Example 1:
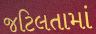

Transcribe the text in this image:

જટિલતામાં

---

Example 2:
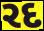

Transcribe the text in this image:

રદ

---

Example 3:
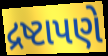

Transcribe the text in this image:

દ્રષ્ટાપણે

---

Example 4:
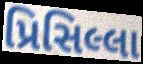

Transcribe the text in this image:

પ્રિસિલ્લા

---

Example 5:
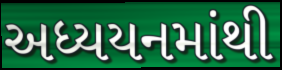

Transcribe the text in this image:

અધ્યયનમાંથી